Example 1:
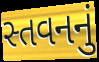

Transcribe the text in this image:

સ્તવનનું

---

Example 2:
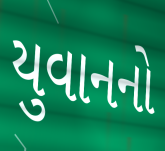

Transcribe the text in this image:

યુવાનનો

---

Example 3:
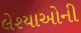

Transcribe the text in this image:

લેશ્યાઓની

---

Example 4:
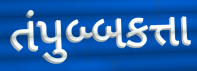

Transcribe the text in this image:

તંપુબ્બકત્તા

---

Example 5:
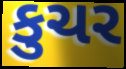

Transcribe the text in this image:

કુચર